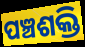
ପଞ୍ଚଶକ୍ତି